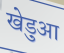
खेड़ुआ